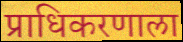
प्राधिकरणाला